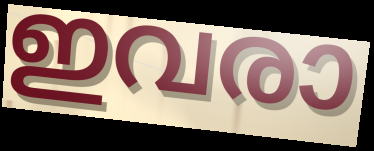
ഇവരാ